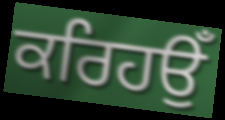
ਕਰਿਹਉਁ